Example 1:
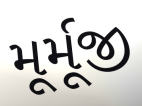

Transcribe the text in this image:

મૂર્મૂજી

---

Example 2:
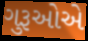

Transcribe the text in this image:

ગુરૂઓએ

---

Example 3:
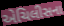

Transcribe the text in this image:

એચિલીસના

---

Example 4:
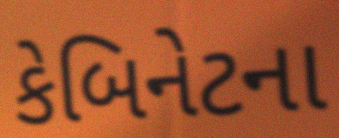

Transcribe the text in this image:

કેબિનેટના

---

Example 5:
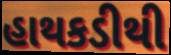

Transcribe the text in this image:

હાથકડીથી